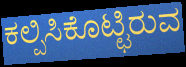
ಕಲ್ಪಿಸಿಕೊಟ್ಟಿರುವ